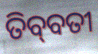
ତିବ୍‌ବତୀ